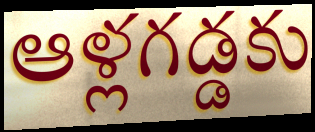
ఆళ్లగడ్డకు